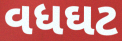
વધઘટ